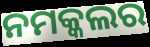
ନମକ୍କଲର